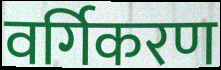
वर्गिकरण